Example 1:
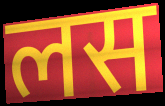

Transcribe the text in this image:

लस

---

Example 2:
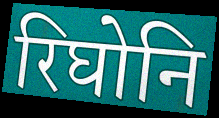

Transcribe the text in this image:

रिघोनि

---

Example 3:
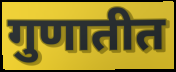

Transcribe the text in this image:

गुणातीत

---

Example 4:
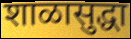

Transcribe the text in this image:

शाळासुद्धा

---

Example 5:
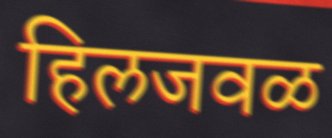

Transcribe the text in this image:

हिलजवळ